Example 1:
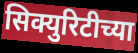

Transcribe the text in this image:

सिक्युरिटीच्या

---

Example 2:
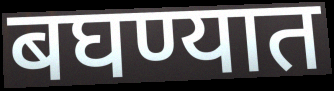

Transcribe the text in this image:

बघण्यात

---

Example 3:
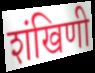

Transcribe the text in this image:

शंखिणी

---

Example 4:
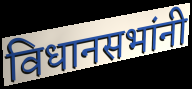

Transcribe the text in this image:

विधानसभांनी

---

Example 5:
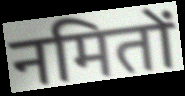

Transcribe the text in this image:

नमितों